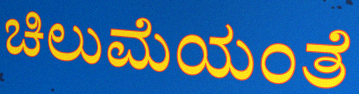
ಚಿಲುಮೆಯಂತೆ